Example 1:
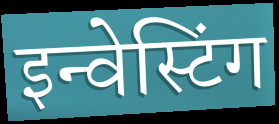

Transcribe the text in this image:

इन्वेस्टिंग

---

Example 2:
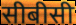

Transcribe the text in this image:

सीबीसी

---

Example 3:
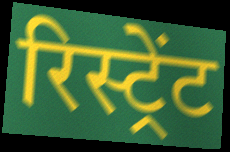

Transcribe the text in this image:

रिस्ट्रेंट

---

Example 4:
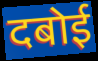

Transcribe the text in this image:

दबोई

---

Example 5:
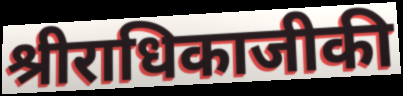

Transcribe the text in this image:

श्रीराधिकाजीकी